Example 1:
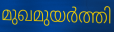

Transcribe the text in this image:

മുഖമുയർത്തി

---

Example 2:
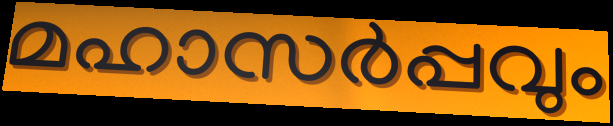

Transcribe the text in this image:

മഹാസർപ്പവും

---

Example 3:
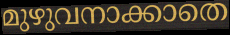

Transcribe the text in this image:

മുഴുവനാക്കാതെ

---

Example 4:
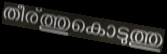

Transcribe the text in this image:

തീര്ത്തുകൊടുത്തു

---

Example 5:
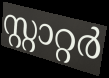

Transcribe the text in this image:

സ്റ്റാറ്റർ